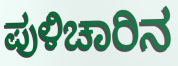
ಪುಳಿಚಾರಿನ